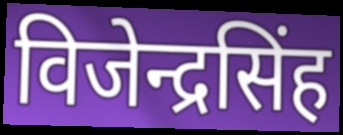
विजेन्द्रसिंह